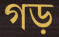
গড়